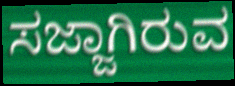
ಸಜ್ಜಾಗಿರುವ